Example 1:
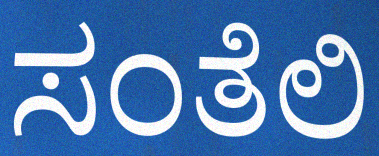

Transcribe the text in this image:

ಸಂತೆಲಿ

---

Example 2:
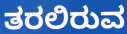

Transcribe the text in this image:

ತರಲಿರುವ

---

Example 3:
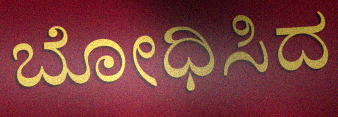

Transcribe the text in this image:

ಬೋಧಿಸಿದ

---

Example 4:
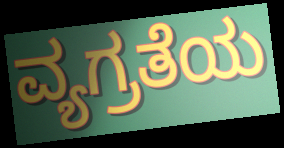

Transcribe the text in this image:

ವ್ಯಗ್ರತೆಯ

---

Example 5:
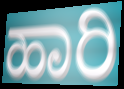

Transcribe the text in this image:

ಹಾರಿ